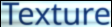
Texture